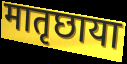
मातृछाया